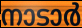
നാടാർ